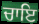
ਚਾਇ